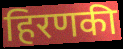
हिरणकी